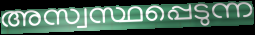
അസ്വസ്ഥപ്പെടുന്ന